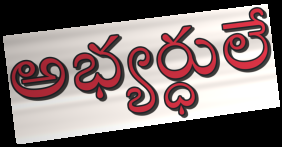
అభ్యర్ధులే